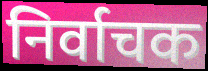
निर्वाचक